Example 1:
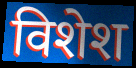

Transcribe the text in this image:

विशेश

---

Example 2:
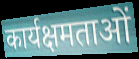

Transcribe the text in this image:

कार्यक्षमताओं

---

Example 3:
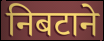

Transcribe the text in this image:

निबटाने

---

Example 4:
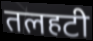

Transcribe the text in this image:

तलहटी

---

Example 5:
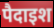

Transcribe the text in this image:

पैदाइश